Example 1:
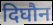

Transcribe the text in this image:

दिघौन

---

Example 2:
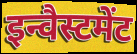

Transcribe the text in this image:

इन्वैस्टमेंट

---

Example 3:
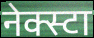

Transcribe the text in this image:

नेक्स्टा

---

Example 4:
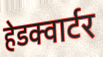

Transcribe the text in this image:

हेडक्वार्टर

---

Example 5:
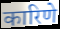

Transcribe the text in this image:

कारिणे